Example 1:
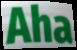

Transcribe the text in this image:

Aha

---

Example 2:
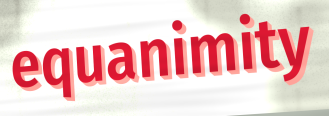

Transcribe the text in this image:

equanimity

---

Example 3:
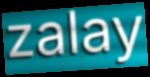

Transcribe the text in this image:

zalay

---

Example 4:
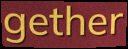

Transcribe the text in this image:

gether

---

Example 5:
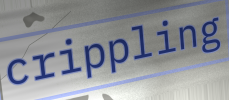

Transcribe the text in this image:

crippling